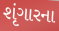
શૃંગારના